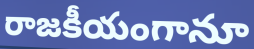
రాజకీయంగానూ